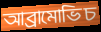
আব্রামোভিচ